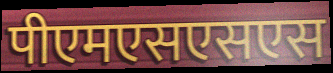
पीएमएसएसएस